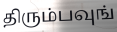
திரும்பவுங்